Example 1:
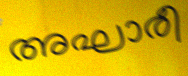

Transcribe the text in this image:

അഘാരീ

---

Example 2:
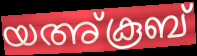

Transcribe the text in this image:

യഅ്കൂബ്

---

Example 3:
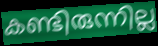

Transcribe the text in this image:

കണ്ടിരുന്നില്ല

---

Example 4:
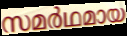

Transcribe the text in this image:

സമർഥമായ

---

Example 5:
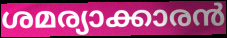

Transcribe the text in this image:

ശമര്യാക്കാരൻ